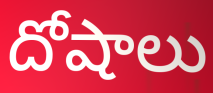
దోషాలు